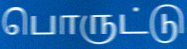
பொருட்டு